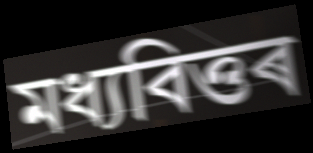
মধ্যবিত্তৰ